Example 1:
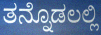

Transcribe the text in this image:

ತನ್ನೊಡಲಲ್ಲಿ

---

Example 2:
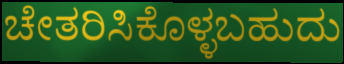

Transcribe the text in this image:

ಚೇತರಿಸಿಕೊಳ್ಳಬಹುದು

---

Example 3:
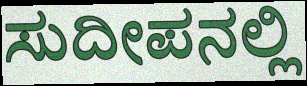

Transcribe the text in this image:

ಸುದೀಪನಲ್ಲಿ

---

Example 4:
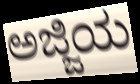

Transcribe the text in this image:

ಅಜ್ಜಿಯ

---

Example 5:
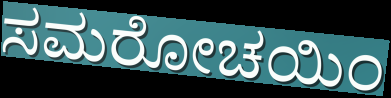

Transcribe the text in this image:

ಸಮರೋಚಯಿಂ